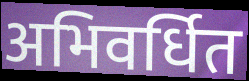
अभिवर्धित